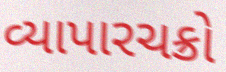
વ્યાપારચક્રો